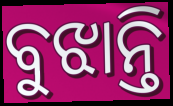
ବୁଝାନ୍ତି